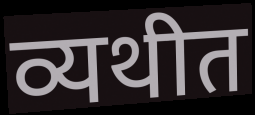
व्यथीत